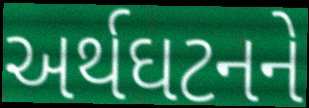
અર્થઘટનને